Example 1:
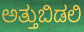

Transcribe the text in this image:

ಅತ್ತುಬಿಡಲಿ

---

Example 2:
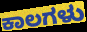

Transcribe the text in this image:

ಕಾಲಗಳು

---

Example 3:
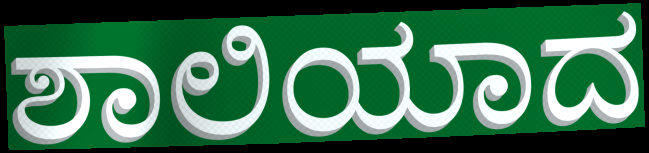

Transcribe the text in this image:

ಶಾಲಿಯಾದ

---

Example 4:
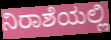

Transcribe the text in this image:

ನಿರಾಶೆಯಲ್ಲಿ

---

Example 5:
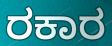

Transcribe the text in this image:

ರಕಾರ